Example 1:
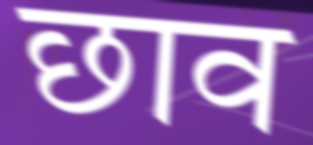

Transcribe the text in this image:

छाव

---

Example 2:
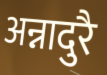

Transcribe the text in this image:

अन्नादुरै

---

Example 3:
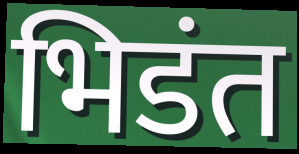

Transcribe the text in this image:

भिडंत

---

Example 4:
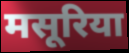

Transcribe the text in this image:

मसूरिया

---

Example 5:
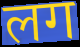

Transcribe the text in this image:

लग